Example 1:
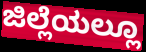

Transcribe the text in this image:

ಜಿಲ್ಲೆಯಲ್ಲೂ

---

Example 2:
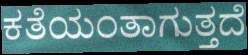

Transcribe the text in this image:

ಕತೆಯಂತಾಗುತ್ತದೆ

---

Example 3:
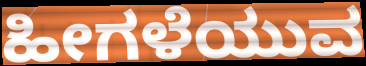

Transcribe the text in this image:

ಹೀಗಳೆಯುವ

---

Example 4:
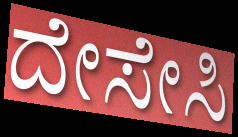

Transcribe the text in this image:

ದೇಸೇಸಿ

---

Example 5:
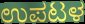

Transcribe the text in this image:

ಉಪಟಳ